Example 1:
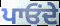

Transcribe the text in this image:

ਪਾਓਂਦੇ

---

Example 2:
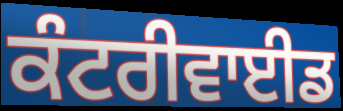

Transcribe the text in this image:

ਕੰਟਰੀਵਾਈਡ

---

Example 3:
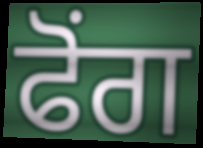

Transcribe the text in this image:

ਫੋਂਗ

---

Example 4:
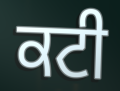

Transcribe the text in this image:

ਕਟੀ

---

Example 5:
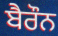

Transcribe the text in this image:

ਬੈਰੌਨ